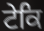
ਟੇਕਿ